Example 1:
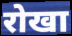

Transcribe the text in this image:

रोखा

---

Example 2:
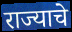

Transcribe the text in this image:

राज्याचे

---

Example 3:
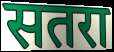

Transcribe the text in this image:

सतरा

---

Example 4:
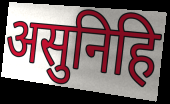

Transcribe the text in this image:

असुनिहि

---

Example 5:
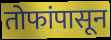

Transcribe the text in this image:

तोफांपासून